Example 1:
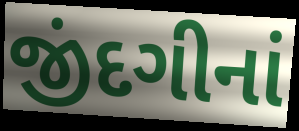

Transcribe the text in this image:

જીંદગીનાં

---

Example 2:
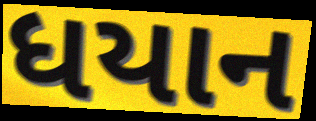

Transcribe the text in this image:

ધયાન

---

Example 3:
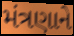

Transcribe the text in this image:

મંત્રણાને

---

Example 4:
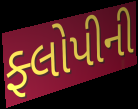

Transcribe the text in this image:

ફ્લોપીની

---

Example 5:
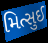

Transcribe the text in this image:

મિત્સુઈ